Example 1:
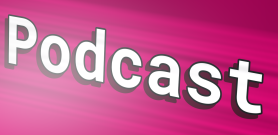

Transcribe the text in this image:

Podcast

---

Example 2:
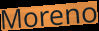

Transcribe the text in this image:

Moreno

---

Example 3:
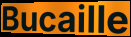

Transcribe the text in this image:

Bucaille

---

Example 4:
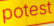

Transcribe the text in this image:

potest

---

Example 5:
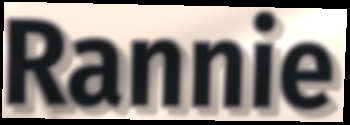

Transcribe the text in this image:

Rannie